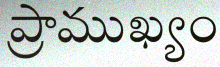
ప్రాముఖ్యం